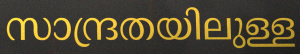
സാന്ദ്രതയിലുള്ള